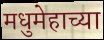
मधुमेहाच्या